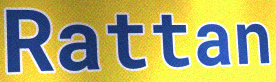
Rattan